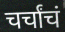
चर्चांचं